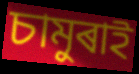
চামুৰাই